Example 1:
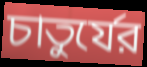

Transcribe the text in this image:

চাতুর্যের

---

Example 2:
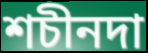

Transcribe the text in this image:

শচীনদা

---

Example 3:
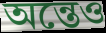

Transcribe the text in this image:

অন্তেও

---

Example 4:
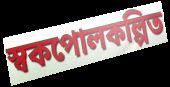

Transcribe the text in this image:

স্বকপোলকল্পিত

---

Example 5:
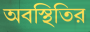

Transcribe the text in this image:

অবস্থিতির